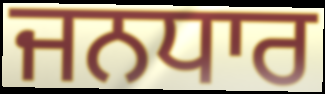
ਜਨਧਾਰ